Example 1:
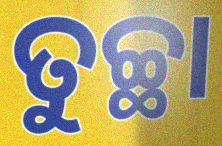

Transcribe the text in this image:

ତୁଚ୍ଛା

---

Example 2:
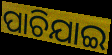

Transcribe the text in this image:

ପାଚିଯାଇ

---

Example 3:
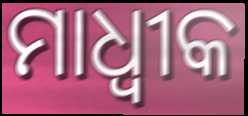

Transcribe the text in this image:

ମାଧ୍ୱୀକ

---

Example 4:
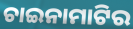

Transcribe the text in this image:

ଚାଇନାମାଟିର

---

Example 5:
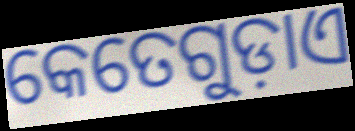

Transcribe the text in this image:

କେତେଗୁଡ଼ାଏ